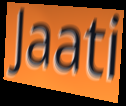
Jaati